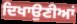
ਦਿਖਾਉਣੀਆਂ